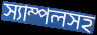
স্যাম্পলসহ